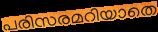
പരിസരമറിയാതെ